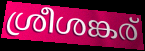
ശ്രീശങ്കര്